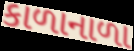
કાળાનાળા